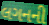
લગનની